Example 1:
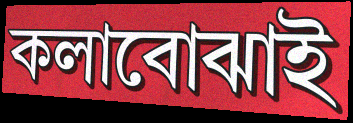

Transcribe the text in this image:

কলাবোঝাই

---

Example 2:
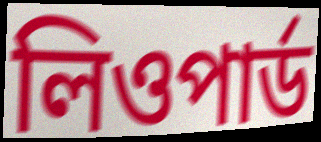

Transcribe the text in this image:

লিওপার্ড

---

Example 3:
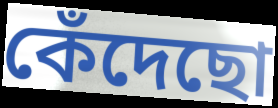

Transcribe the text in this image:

কেঁদেছো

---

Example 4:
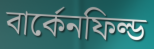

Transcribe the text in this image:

বার্কেনফিল্ড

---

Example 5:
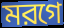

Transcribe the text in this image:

মরগে